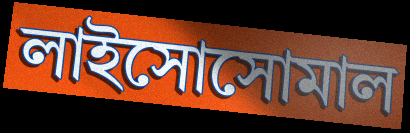
লাইসোসোমাল